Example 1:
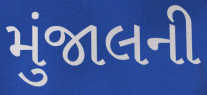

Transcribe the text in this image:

મુંજાલની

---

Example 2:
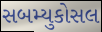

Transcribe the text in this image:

સબમ્યુકોસલ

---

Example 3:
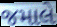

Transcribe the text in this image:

જમાલે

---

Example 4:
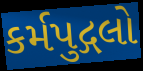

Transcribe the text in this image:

કર્મપુદ્ગલો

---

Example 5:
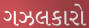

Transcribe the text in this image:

ગઝલકારો